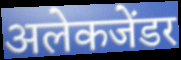
अलेकजेंडर